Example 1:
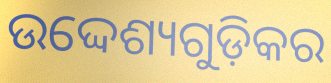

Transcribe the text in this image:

ଉଦ୍ଦେଶ୍ୟଗୁଡ଼ିକର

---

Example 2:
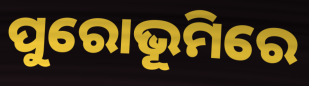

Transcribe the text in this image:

ପୁରୋଭୂମିରେ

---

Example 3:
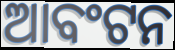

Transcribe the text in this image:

ଆବଂଟନ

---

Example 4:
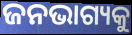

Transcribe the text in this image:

ଜନଭାଗ୍ୟକୁ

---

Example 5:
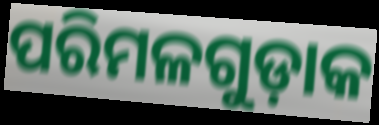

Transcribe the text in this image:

ପରିମଳଗୁଡ଼ାକ